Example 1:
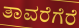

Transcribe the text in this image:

ತಾವರೆಗೆರೆ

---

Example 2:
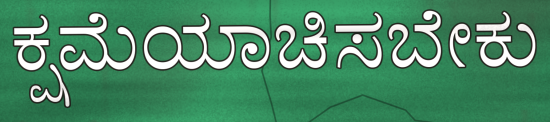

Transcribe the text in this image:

ಕ್ಷಮೆಯಾಚಿಸಬೇಕು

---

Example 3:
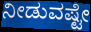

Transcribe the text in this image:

ನೀಡುವಷ್ಟೇ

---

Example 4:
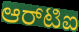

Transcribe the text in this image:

ಆರ್‌ಟಿಐ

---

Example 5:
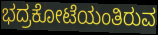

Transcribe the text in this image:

ಭದ್ರಕೋಟೆಯಂತಿರುವ